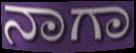
ನಾಗಾ